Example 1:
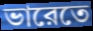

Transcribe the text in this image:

ভারেতে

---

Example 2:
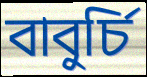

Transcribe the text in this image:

বাবুর্চি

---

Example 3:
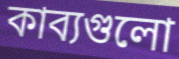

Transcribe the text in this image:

কাব্যগুলো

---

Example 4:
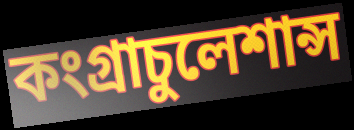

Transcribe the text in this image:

কংগ্রাচুলেশান্স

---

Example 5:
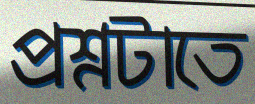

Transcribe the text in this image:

প্রশ্নটাতে